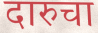
दारुचा